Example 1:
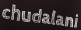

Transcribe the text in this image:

chudalani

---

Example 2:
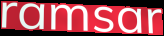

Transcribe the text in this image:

ramsar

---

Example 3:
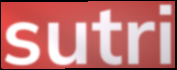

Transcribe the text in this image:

sutri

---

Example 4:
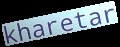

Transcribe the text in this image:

kharetar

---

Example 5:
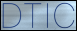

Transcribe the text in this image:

DTIC